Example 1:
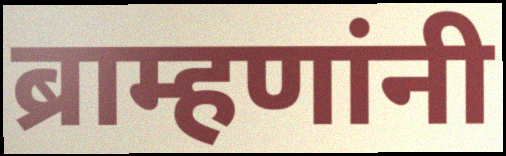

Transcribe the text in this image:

ब्राम्हणांनी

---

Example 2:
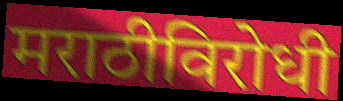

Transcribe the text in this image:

मराठीविरोधी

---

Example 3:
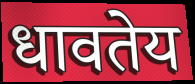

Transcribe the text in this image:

धावतेय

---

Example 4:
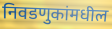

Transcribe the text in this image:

निवडणुकांमधील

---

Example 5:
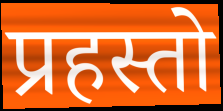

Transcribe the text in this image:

प्रहस्तो